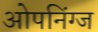
ओपनिंग्ज